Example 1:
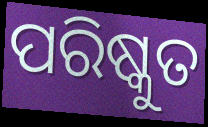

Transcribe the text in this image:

ପରିଷ୍କୁତ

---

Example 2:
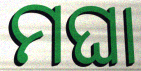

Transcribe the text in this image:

ମଘା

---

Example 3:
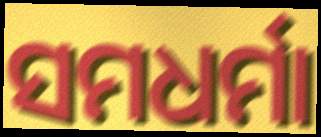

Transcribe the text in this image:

ସମଧର୍ମା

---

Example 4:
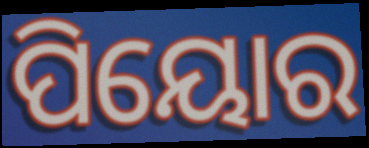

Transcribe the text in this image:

ପିୟୋର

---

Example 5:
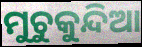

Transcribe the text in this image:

ମୁଚୁକୁନ୍ଦିଆ